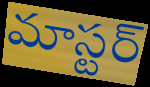
మాస్టర్